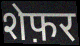
शेफ़र